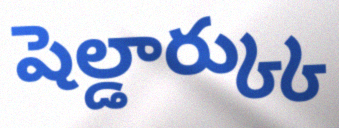
షెల్డార్క్కు